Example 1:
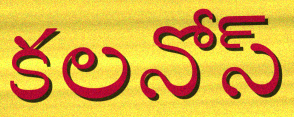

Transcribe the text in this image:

కలనోస్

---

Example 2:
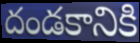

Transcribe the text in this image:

దండకానికి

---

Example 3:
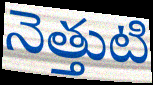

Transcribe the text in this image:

నెత్తుటి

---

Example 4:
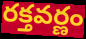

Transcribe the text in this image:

రక్తవర్ణం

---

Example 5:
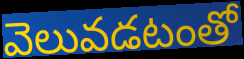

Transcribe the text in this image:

వెలువడటంతో